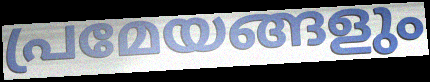
പ്രമേയങ്ങളും